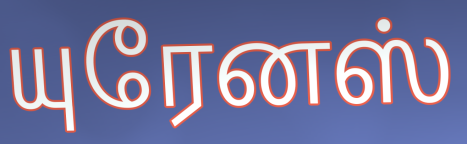
யுரேனஸ்